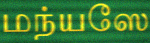
மந்யஸே